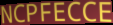
NCPFECCE